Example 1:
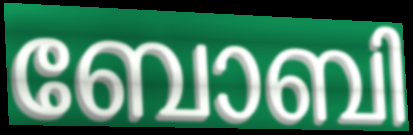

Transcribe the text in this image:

ബോബി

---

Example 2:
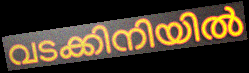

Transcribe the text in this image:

വടക്കിനിയിൽ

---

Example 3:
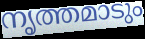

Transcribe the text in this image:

നൃത്തമാടും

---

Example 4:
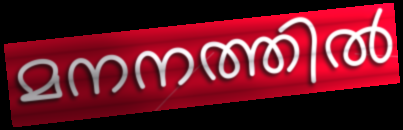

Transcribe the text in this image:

മനനത്തിൽ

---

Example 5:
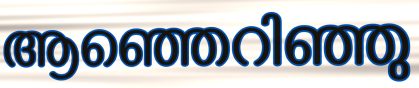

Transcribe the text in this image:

ആഞ്ഞെറിഞ്ഞു